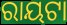
ରାୟଟା